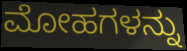
ಮೋಹಗಳನ್ನು